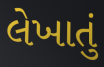
લેખાતું